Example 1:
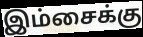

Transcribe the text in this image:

இம்சைக்கு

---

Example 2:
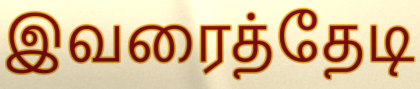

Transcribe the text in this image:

இவரைத்தேடி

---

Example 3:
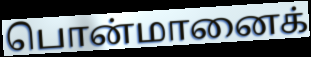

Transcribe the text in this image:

பொன்மானைக்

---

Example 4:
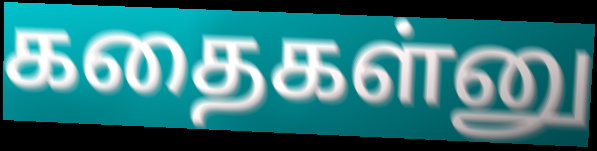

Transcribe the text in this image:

கதைகள்னு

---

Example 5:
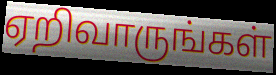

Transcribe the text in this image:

ஏறிவாருங்கள்